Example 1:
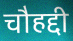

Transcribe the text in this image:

चौहद्दी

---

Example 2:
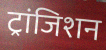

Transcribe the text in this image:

ट्रांजिशन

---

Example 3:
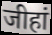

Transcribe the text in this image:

जीहां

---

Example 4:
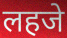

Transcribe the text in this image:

लहजे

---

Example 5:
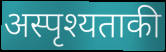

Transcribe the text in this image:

अस्पृश्यताकी